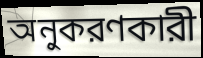
অনুকরণকারী